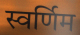
स्वर्णिम